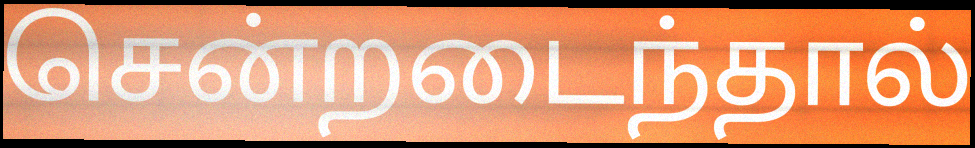
சென்றடைந்தால்